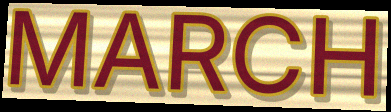
MARCH